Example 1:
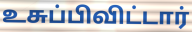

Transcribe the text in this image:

உசுப்பிவிட்டார்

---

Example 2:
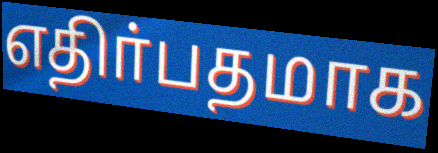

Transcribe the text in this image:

எதிர்பதமாக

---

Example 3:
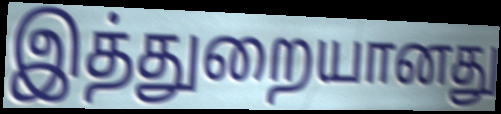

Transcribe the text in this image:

இத்துறையானது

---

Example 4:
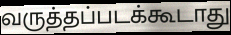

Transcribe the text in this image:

வருத்தப்படக்கூடாது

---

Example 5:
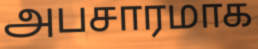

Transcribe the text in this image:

அபசாரமாக